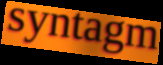
syntagm